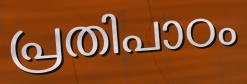
പ്രതിപാഠം